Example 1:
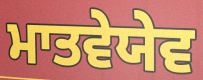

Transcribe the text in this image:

ਮਾਤਵੇਯੇਵ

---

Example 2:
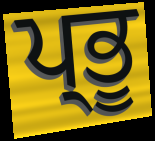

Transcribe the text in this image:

ਪ੍ਭੂ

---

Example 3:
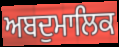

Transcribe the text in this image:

ਅਬਦੁਮਾਲਿਕ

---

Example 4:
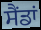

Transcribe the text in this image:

ਸੈਂਡਾਂ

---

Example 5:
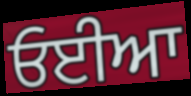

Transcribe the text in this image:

ਓਈਆ